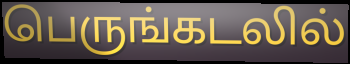
பெருங்கடலில்